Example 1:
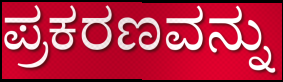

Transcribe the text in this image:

ಪ್ರಕರಣವನ್ನು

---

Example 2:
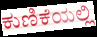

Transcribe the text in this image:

ಕುಣಿಕೆಯಲ್ಲಿ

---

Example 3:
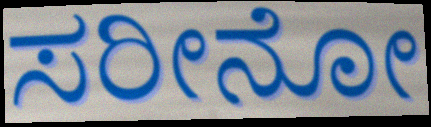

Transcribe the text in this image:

ಸರೀನೋ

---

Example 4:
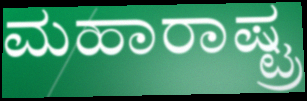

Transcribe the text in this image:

ಮಹಾರಾಷ್ಟ್ರ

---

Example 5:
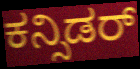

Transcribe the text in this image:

ಕನ್ಸಿಡರ್